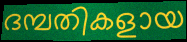
ദമ്പതികളായ